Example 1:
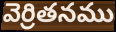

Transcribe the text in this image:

వెర్రితనము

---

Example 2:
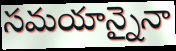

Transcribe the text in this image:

సమయాన్నైనా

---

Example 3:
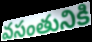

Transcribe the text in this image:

వసంతునికి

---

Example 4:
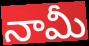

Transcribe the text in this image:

నామీ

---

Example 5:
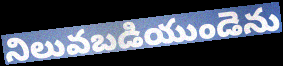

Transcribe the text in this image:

నిలువబడియుండెను